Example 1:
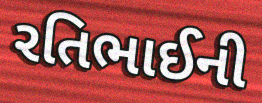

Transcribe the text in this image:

રતિભાઈની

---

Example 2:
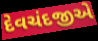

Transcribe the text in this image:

દેવચંદજીએ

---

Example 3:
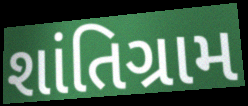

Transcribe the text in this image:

શાંતિગ્રામ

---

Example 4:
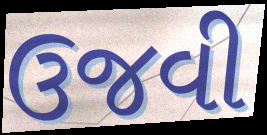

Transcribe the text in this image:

ઉજવી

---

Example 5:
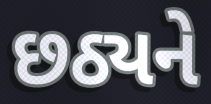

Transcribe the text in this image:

છઠ્યને